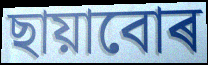
ছায়াবোৰ